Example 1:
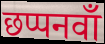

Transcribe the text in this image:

छप्पनवाँ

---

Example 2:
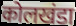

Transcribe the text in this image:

कोलखंडा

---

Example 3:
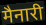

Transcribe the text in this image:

मैनारी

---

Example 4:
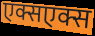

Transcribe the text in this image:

एक्सएक्स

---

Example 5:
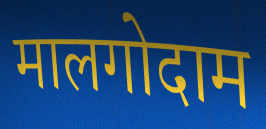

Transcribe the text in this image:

मालगोदाम